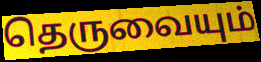
தெருவையும்